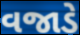
વજાડે